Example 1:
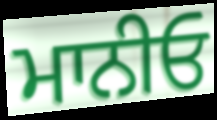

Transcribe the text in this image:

ਮਾਨੀਓ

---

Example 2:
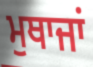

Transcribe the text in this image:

ਮੁਥਾਜਾਂ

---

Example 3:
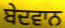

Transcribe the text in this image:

ਬੇਦਵਾਨ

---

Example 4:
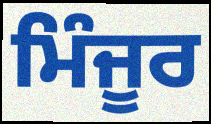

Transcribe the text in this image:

ਮਿੰਜੂਰ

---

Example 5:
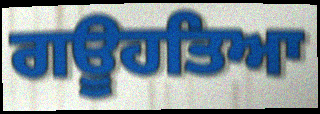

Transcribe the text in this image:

ਗਊਹਤਿਆ